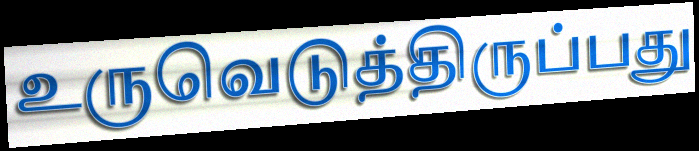
உருவெடுத்திருப்பது